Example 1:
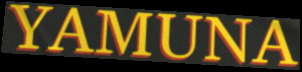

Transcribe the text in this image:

YAMUNA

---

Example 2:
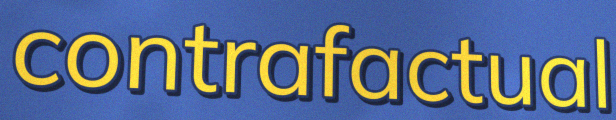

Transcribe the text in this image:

contrafactual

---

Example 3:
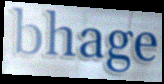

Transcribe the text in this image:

bhage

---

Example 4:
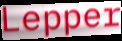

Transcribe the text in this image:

Lepper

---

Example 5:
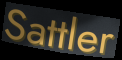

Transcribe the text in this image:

Sattler